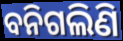
ବନିଗଲିଣି